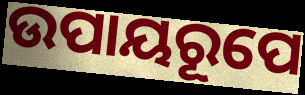
ଉପାୟରୂପେ